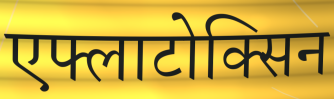
एफ्लाटोक्सिन